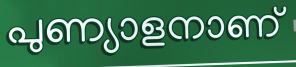
പുണ്യാളനാണ്